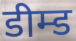
डीम्ड